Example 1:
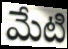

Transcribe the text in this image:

మేటి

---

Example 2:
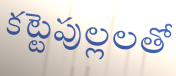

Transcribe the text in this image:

కట్టెపుల్లలతో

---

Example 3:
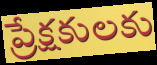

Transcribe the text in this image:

ప్రేక్షకులకు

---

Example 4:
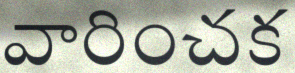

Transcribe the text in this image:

వారించక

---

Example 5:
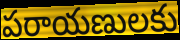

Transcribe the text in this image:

పరాయణులకు